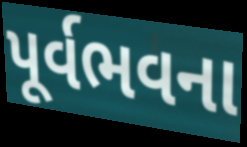
પૂર્વભવના